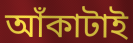
আঁকাটাই